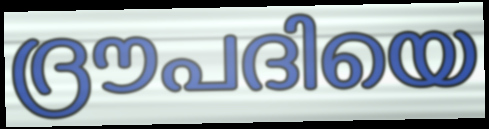
ദ്രൗപദിയെ